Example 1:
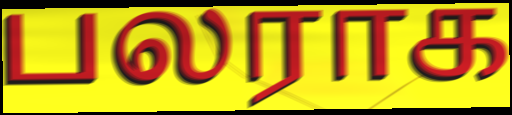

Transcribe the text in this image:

பலராக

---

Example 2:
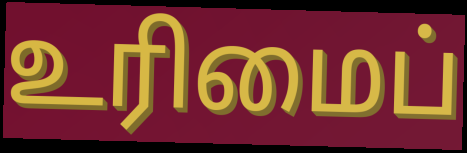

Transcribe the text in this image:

உரிமைப்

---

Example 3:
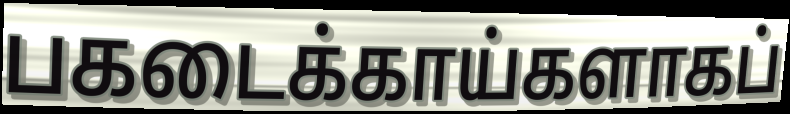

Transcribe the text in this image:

பகடைக்காய்களாகப்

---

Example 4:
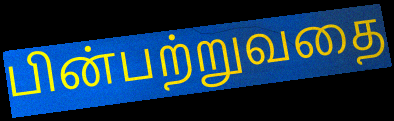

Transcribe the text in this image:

பின்பற்றுவதை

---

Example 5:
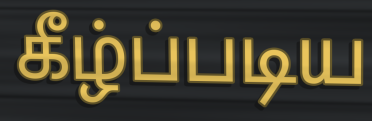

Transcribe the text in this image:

கீழ்ப்படிய